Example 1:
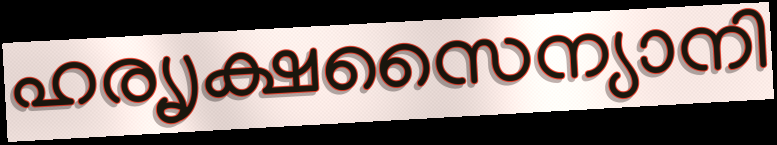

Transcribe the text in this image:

ഹര്യൃക്ഷസൈന്യാനി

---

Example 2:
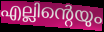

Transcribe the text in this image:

എല്ലിന്റെയും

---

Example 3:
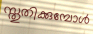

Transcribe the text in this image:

സ്തുതിക്കുമ്പോൾ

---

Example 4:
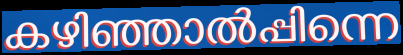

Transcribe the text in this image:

കഴിഞ്ഞാൽപ്പിന്നെ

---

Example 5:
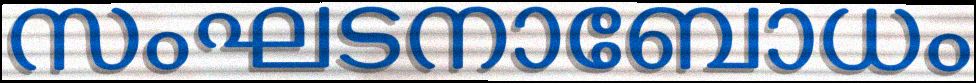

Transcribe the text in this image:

സംഘടനാബോധം